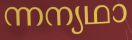
ന്നന്യഥാ